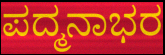
ಪದ್ಮನಾಭರ